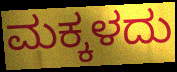
ಮಕ್ಕಳದು